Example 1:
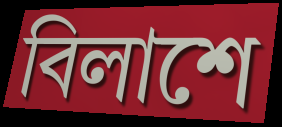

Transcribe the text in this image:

বিলাশে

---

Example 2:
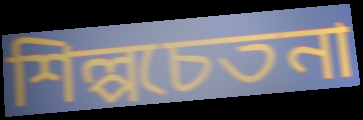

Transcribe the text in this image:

শিল্পচেতনা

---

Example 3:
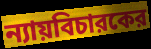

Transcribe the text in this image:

ন্যায়বিচারকের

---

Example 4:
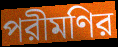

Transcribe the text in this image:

পরীমণির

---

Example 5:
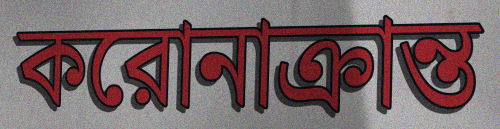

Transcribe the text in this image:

করোনাক্রান্ত